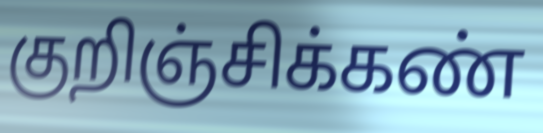
குறிஞ்சிக்கண்